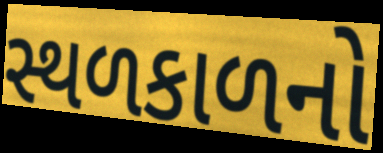
સ્થળકાળનો